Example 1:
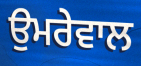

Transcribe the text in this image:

ਉਮਰੇਵਾਲ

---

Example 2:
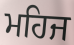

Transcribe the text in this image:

ਮਹਿਜ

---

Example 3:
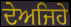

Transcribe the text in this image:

ਦੇਅਜਿਹੇ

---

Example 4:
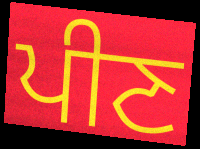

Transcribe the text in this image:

ਪੀਣ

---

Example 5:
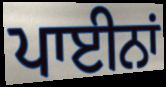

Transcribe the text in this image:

ਪਾਈਨਾਂ